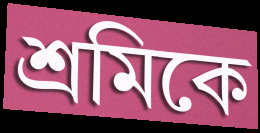
শ্রমিকে